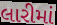
લારીમાં